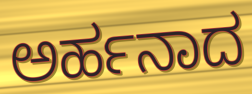
ಅರ್ಹನಾದ